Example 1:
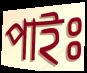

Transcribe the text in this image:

পাইঃ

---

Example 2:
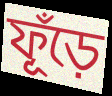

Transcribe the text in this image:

ফূঁড়ে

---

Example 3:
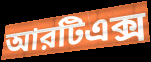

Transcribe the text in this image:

আরটিএক্স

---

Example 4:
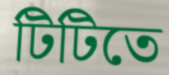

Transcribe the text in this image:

টিটিতে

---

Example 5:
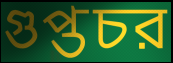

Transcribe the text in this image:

গুপ্তচর